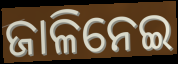
ଜାଳିନେଇ